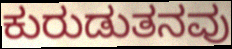
ಕುರುಡುತನವು